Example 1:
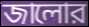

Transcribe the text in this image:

জালোর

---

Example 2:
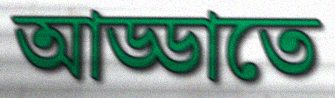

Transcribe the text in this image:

আড্ডাতে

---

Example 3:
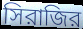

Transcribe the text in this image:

সিরাজির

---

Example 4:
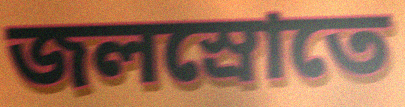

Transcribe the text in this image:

জলস্রোতে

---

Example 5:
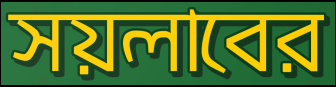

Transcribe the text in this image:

সয়লাবের